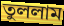
তুললাম